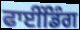
ਫਾਈਂਡਿੰਗ